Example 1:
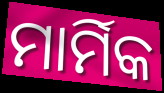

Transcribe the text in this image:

ମାର୍ମିକ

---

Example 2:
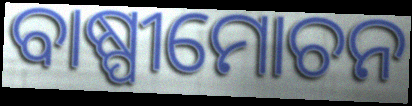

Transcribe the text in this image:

ବାଷ୍ପୀମୋଚନ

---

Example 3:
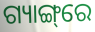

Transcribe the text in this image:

ଗ୍ୟାଙ୍ଗ୍‌ରେ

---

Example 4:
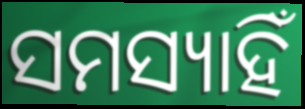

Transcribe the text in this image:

ସମସ୍ୟାହିଁ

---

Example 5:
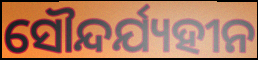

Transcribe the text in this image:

ସୌନ୍ଦର୍ଯ୍ୟହୀନ